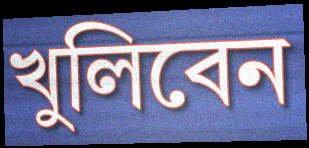
খুলিবেন